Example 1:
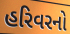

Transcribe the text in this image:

હરિવરનો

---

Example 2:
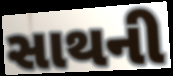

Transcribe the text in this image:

સાથની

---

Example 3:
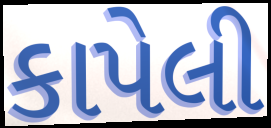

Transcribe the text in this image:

કાપેલી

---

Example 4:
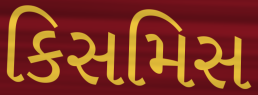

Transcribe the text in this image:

કિસમિસ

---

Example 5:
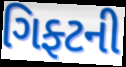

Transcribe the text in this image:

ગિફ્ટની